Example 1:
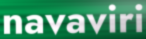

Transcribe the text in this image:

navaviri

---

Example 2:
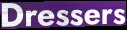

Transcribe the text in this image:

Dressers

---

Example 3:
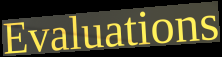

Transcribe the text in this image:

Evaluations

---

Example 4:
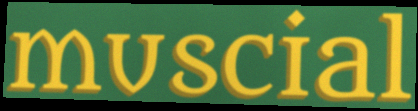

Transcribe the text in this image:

muscial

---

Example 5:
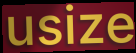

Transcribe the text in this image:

usize